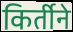
किर्तीने